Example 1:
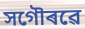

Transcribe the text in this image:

সগৌৰৱে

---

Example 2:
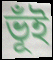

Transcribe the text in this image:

ভূঁই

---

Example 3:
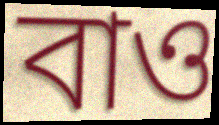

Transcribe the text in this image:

বাও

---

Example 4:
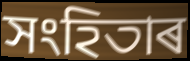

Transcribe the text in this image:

সংহিতাৰ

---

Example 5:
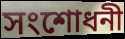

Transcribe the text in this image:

সংশোধনী